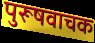
पुरूषवाचक